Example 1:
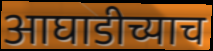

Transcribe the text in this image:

आघाडीच्याच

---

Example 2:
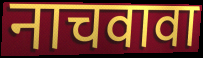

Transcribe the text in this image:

नाचवावा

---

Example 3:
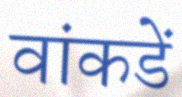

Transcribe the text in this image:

वांकडें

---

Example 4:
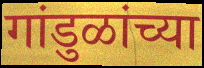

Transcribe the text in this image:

गांडुळांच्या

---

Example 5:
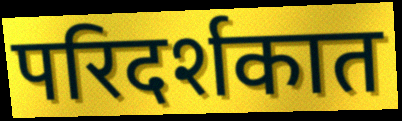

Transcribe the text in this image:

परिदर्शकात